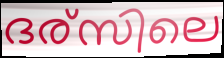
ദര്സിലെ